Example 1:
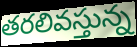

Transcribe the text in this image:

తరలివస్తున్న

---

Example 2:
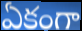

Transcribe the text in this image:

ఏకంగా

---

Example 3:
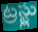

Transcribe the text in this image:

ట్రస్ట్లు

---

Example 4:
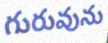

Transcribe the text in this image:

గురువును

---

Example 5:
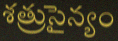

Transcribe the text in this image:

శత్రుసైన్యం